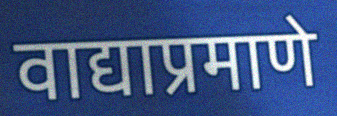
वाद्याप्रमाणे